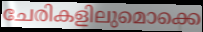
ചേരികളിലുമൊക്കെ